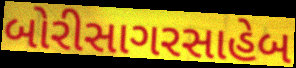
બોરીસાગરસાહેબ